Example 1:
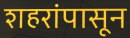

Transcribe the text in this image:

शहरांपासून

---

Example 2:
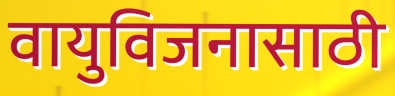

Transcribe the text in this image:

वायुविजनासाठी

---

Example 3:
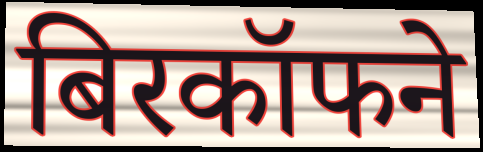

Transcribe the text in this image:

बिरकॉफने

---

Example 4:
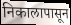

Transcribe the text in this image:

निकालापासून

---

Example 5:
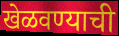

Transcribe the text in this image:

खेळवण्याची